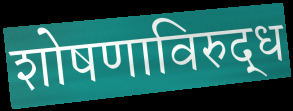
शोषणाविरुद्ध